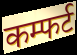
कम्फर्ट